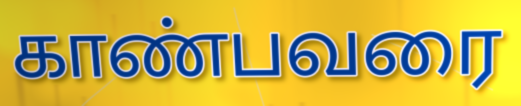
காண்பவரை